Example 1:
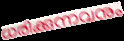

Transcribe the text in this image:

ധരിക്കുന്നവനും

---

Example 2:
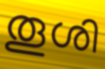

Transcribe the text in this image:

തൂശി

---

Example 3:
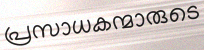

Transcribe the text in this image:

പ്രസാധകന്മാരുടെ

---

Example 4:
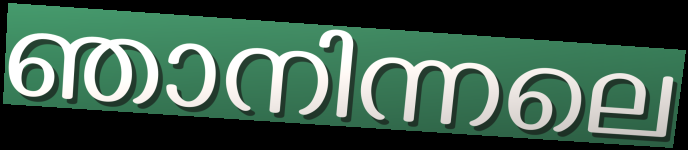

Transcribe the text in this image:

ഞാനിന്നലെ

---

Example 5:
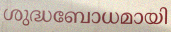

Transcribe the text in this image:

ശുദ്ധബോധമായി